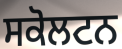
ਸਕੋਲਟਨ